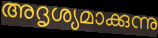
അദൃശ്യമാക്കുന്നു